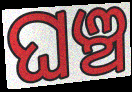
ଘଞ୍ଚ